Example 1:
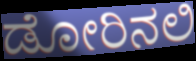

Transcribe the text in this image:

ಡೋರಿನಲಿ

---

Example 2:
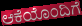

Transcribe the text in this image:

ಆಕೆಯೊಂದಿಗೆ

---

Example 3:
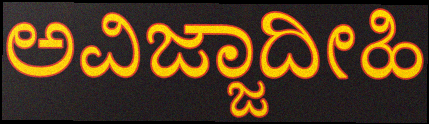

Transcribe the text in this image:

ಅವಿಜ್ಜಾದೀಹಿ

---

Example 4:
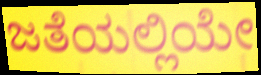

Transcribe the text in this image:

ಜತೆಯಲ್ಲಿಯೇ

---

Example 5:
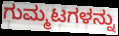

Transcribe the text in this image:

ಗುಮ್ಮಟಗಳನ್ನು